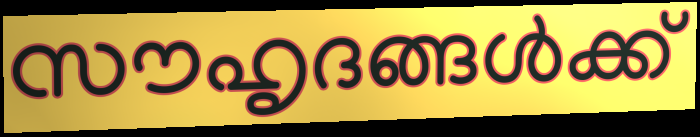
സൗഹൃദങ്ങൾക്ക്